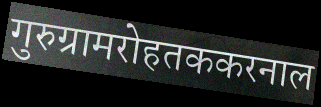
गुरुग्रामरोहतककरनाल